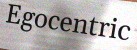
Egocentric